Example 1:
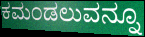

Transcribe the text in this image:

ಕಮಂಡಲುವನ್ನೂ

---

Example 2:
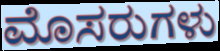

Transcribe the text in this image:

ಮೊಸರುಗಳು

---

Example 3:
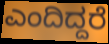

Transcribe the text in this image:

ಎಂದಿದ್ದರೆ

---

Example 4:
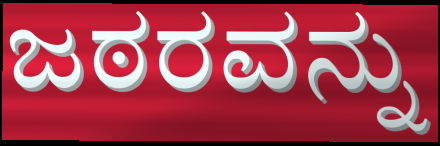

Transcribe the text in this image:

ಜಠರವನ್ನು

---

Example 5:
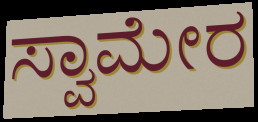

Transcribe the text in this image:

ಸ್ವಾಮೇರ